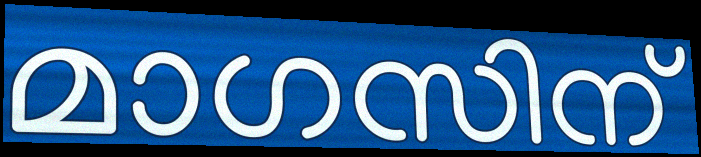
മാഗസിന്